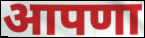
आपणा